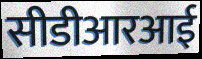
सीडीआरआई